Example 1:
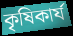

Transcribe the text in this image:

কৃষিকাৰ্য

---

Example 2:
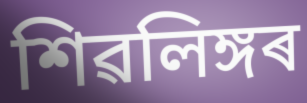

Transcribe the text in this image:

শিৱলিঙ্গৰ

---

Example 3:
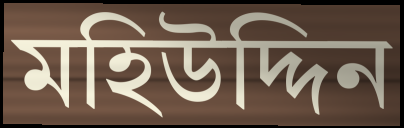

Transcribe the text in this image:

মহিউদ্দিন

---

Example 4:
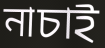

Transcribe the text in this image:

নাচাই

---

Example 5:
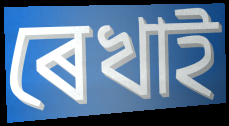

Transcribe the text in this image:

ৰেখাই